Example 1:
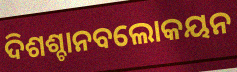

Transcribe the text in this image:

ଦିଶଶ୍ଚାନବଲୋକୟନ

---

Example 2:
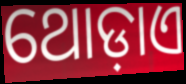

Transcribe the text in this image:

ଥୋଡ଼ାଏ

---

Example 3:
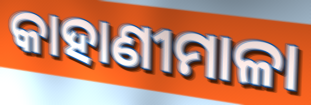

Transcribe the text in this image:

କାହାଣୀମାଳା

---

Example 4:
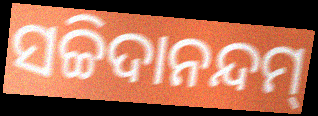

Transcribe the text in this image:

ସଚ୍ଚିଦାନନ୍ଦମ୍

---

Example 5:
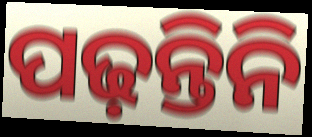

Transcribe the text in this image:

ପଢ଼ନ୍ତିନି